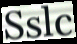
Sslc